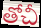
తోచీ